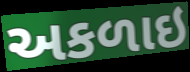
અકળાઇ